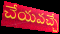
చేయవచ్చే